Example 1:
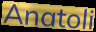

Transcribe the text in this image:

Anatoli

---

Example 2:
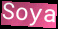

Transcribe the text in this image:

Soya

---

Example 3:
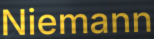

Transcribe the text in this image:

Niemann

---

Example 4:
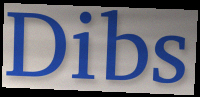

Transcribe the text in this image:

Dibs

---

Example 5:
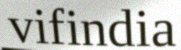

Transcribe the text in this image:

vifindia